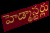
హెడ్మాస్టర్లు